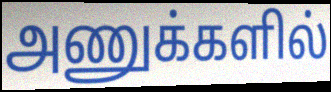
அணுக்களில்